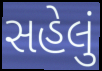
સહેલું